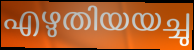
എഴുതിയയച്ചു